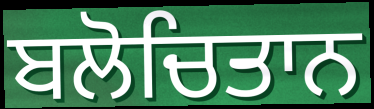
ਬਲੋਚਿਤਾਨ